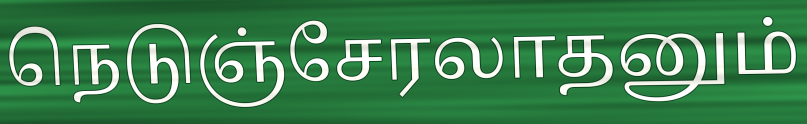
நெடுஞ்சேரலாதனும்